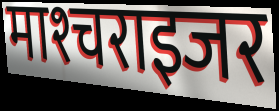
माश्चराइजर